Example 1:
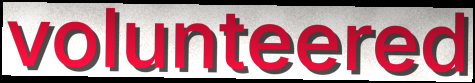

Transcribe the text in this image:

volunteered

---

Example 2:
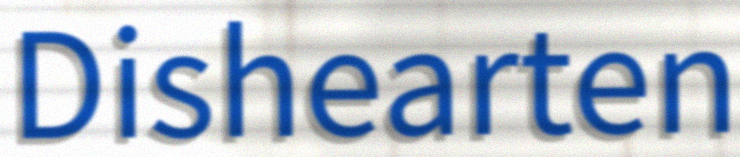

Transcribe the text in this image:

Dishearten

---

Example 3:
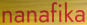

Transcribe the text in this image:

nanafika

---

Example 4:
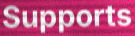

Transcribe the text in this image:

Supports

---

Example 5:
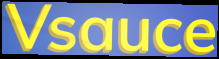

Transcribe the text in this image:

Vsauce